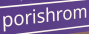
porishrom